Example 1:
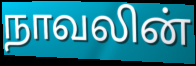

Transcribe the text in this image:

நாவலின்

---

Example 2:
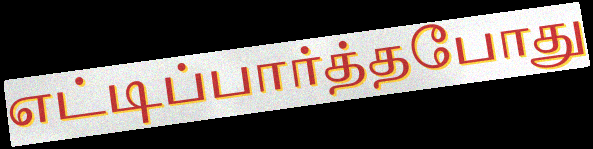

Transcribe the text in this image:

எட்டிப்பார்த்தபோது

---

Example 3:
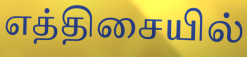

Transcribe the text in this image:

எத்திசையில்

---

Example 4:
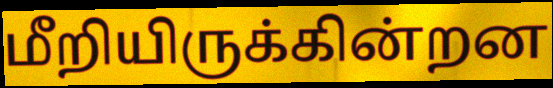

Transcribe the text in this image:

மீறியிருக்கின்றன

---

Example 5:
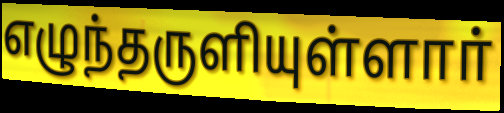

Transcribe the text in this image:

எழுந்தருளியுள்ளார்